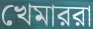
খেমাররা